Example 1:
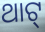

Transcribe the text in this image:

ଥାଟ୍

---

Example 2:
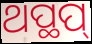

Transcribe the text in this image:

ଥପ୍ଥପ୍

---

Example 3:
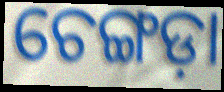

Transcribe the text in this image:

ଚେଙ୍ଗଡ଼ା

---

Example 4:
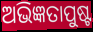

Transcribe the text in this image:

ଅଭିଜ୍ଞତାପୁଷ୍ଟ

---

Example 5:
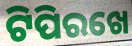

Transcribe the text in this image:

ଟିପିରଖେ